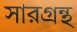
সারগ্রন্থ